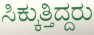
ಸಿಕ್ಕುತ್ತಿದ್ದರು